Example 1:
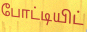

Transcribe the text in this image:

போட்டியிட்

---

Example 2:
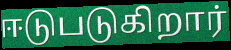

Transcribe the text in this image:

ஈடுபடுகிறார்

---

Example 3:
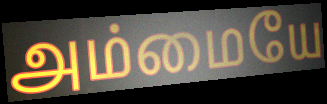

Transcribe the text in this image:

அம்மையே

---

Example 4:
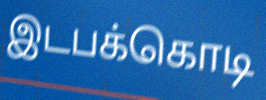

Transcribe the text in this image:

இடபக்கொடி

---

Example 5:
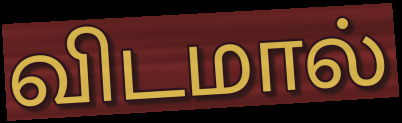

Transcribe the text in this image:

விடமால்